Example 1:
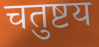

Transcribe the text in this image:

चतुष्टय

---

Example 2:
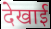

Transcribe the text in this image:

देखाई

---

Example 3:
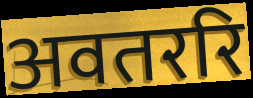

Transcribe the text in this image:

अवतररि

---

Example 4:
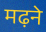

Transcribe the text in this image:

मढ़ने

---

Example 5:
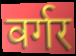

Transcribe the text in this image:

वर्गर